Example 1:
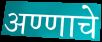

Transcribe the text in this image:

अण्णाचे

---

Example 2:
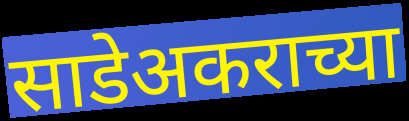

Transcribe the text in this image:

साडेअकराच्या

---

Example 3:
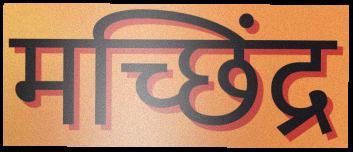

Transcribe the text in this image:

मच्छिंद्र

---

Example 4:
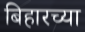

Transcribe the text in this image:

बिहारच्या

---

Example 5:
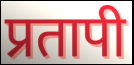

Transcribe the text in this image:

प्रतापी